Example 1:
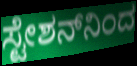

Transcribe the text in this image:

ಸ್ಟೇಶನ್‌ನಿಂದ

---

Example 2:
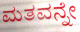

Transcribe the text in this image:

ಮತವನ್ನೇ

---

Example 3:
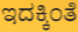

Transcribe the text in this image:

ಇದಕ್ಕಿಂತೆ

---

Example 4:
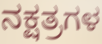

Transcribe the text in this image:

ನಕ್ಷತ್ರಗಳ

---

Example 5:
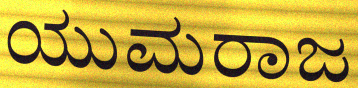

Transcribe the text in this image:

ಯುಮರಾಜ